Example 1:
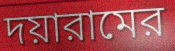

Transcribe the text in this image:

দয়ারামের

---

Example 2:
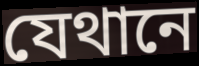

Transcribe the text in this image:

যেথানে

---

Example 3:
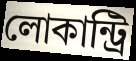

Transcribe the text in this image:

লোকান্ট্রি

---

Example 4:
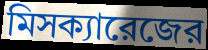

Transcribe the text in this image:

মিসক্যারেজের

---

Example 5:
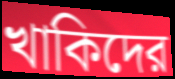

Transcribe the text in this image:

খাকিদের